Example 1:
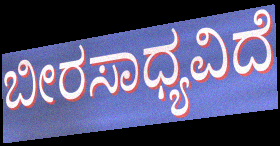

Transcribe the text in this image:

ಬೀರಸಾಧ್ಯವಿದೆ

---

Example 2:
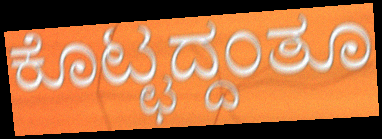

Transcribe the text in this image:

ಕೊಟ್ಟದ್ದಂತೂ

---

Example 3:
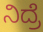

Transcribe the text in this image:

ನಿದ್ರೆ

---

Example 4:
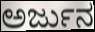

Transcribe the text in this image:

ಅರ್ಜುನ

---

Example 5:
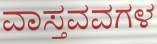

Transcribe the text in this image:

ವಾಸ್ತವವಗಳ